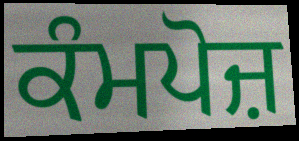
ਕੰਮਪੋਜ਼